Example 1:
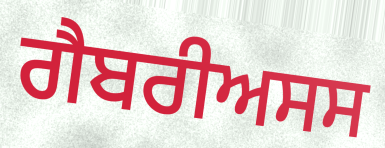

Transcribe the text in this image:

ਗੈਬਰੀਅਸਸ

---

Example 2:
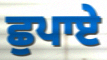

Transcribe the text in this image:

ਛੁਪਾਏ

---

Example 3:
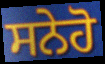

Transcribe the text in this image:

ਸਨੇਹੋ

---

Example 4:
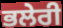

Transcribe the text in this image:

ਭਲੇਰੀ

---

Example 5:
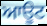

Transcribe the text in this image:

ਆਊਟ